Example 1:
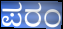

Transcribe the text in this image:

ಪರಂ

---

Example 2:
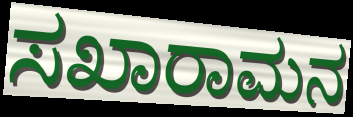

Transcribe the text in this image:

ಸಖಾರಾಮನ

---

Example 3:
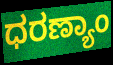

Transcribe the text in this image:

ಧರಣ್ಯಾಂ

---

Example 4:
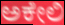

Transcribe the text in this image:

ಅಕೇಲಿ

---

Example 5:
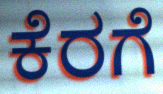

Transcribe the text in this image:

ಕೆರಗೆ